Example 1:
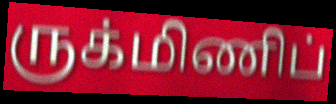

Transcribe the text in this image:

ருக்மிணிப்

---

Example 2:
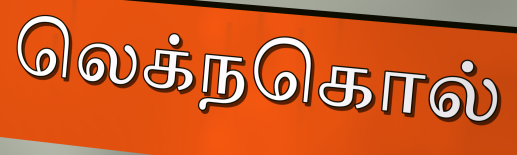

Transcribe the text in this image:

லெக்நகொல்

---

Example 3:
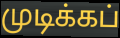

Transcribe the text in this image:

முடிக்கப்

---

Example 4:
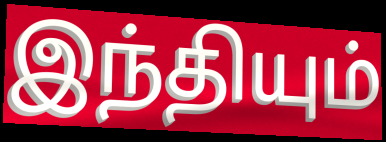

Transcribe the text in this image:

இந்தியும்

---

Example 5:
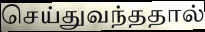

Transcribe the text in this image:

செய்துவந்ததால்